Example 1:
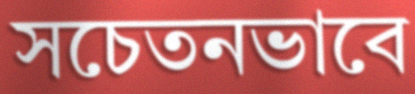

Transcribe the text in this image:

সচেতনভাবে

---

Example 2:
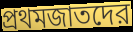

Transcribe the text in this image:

প্রথমজাতদের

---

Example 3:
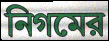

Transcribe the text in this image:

নিগমের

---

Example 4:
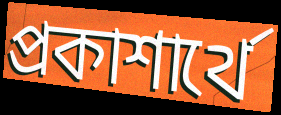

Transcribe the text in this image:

প্রকাশার্থে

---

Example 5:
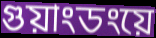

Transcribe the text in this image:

গুয়াংডংয়ে